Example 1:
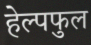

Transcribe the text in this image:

हेल्पफुल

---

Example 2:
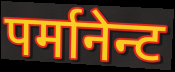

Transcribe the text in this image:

पर्मानेन्ट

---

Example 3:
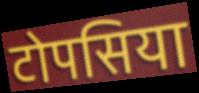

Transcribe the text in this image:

टोपसिया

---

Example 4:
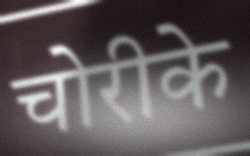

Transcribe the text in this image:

चोरीके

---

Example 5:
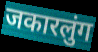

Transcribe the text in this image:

जकारलुंग